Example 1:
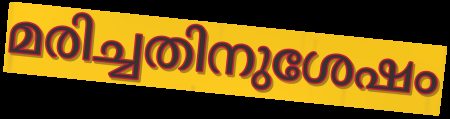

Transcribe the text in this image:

മരിച്ചതിനുശേഷം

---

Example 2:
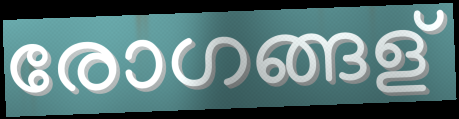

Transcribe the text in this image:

രോഗങ്ങള്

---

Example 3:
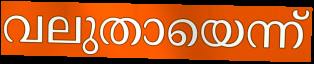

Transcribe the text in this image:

വലുതായെന്ന്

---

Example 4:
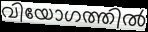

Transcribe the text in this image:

വിയോഗത്തിൽ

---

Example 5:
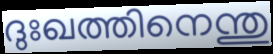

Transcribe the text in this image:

ദുഃഖത്തിനെന്തു